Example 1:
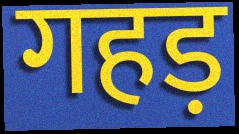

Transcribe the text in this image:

गहड़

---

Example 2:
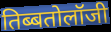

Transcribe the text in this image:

तिब्बतोलॉजी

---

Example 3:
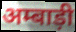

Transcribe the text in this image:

अम्बाड़ी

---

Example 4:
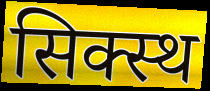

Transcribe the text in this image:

सिक्स्थ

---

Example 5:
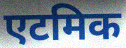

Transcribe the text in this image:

एटमिक